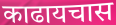
काढायचास